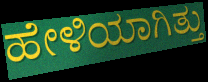
ಹೇಳಿಯಾಗಿತ್ತು